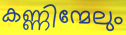
കണ്ണിന്മേലും